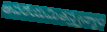
అపరేయమితస్త్వన్యాం